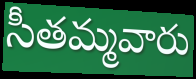
సీతమ్మవారు